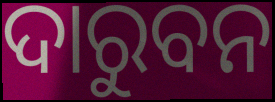
ଦାରୁବନ